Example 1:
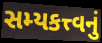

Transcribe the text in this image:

સમ્યકત્ત્વનું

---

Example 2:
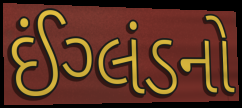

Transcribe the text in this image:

ઈંગ્લંડનો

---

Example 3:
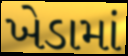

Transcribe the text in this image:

ખેડામાં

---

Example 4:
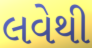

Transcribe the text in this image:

લવેથી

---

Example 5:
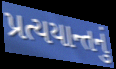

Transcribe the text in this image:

પ્રત્યયાન્તનું